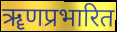
ॠणप्रभारित